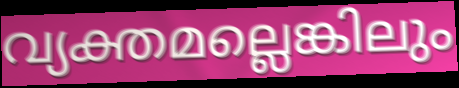
വ്യക്തമല്ലെങ്കിലും